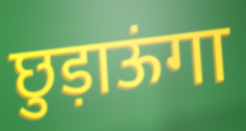
छुड़ाऊंगा